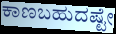
ಕಾಣಬಹುದಷ್ಟೇ